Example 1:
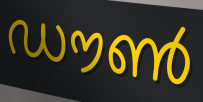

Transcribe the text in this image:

ഡൗൺ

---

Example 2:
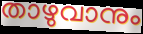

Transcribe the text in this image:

താഴുവാനും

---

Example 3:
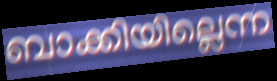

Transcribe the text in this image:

ബാക്കിയില്ലെന്ന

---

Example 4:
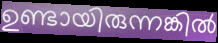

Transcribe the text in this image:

ഉണ്ടായിരുന്നങ്കിൽ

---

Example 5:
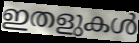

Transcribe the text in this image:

ഇതളുകൾ